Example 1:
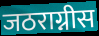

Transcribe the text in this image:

जठराग्नीस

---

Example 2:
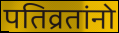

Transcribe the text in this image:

पतिव्रतांनो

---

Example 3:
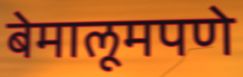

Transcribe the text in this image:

बेमालूमपणे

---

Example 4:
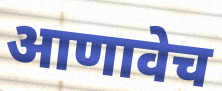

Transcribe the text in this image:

आणावेच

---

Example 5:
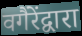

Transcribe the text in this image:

वगैरेंद्वारा